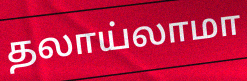
தலாய்லாமா